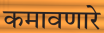
कमावणारे